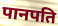
पानपति